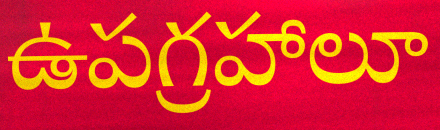
ఉపగ్రహాలూ